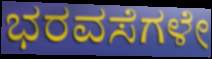
ಭರವಸೆಗಳೇ